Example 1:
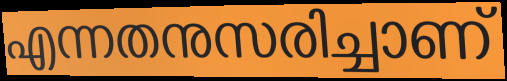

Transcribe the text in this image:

എന്നതനുസരിച്ചാണ്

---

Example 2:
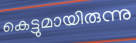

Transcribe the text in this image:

കെട്ടുമായിരുന്നു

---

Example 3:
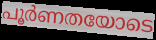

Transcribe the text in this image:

പൂർണതയോടെ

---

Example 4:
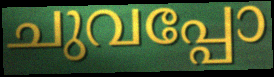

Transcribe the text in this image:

ചുവപ്പോ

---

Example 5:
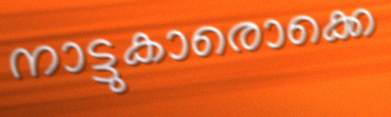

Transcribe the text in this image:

നാട്ടുകാരൊക്കെ